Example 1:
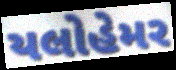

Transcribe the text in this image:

યલોહેમર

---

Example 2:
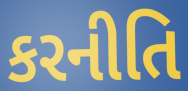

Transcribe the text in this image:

કરનીતિ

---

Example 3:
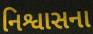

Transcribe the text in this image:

નિશ્વાસના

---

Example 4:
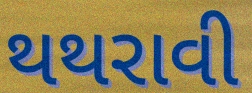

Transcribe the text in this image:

થથરાવી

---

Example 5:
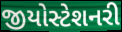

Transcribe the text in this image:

જીયોસ્ટેશનરી